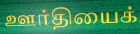
ஊர்தியைக்